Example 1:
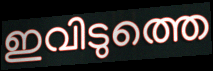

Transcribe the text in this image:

ഇവിടുത്തെ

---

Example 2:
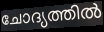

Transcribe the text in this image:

ചോദ്യത്തിൽ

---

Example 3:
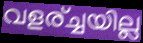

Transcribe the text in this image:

വളര്ച്ചയില്ല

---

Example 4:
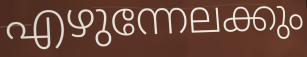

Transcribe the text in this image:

എഴുന്നേലക്കും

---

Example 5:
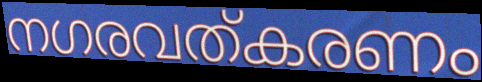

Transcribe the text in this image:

നഗരവത്കരണം